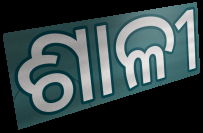
ଶାଳୀ